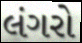
લંગરો